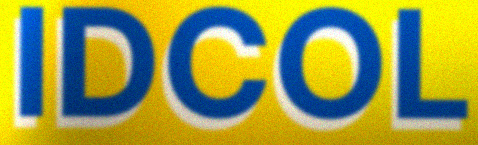
IDCOL